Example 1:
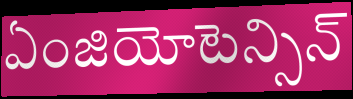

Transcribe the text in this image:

ఏంజియోటెన్సిన్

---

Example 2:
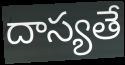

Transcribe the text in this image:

దాస్యతే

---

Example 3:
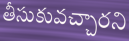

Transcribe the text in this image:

తీసుకువచ్చారని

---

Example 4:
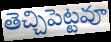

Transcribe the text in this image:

తెచ్చిపెట్టవూ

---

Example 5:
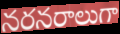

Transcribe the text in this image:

నరనరాలుగా